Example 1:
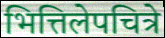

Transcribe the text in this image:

भित्तिलेपचित्रे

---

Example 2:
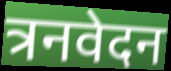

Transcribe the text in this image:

त्रनवेदन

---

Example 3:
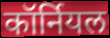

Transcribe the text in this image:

कॉर्नियल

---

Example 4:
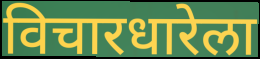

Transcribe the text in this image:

विचारधारेला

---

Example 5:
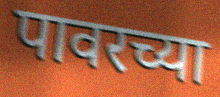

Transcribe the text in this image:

पावरच्या